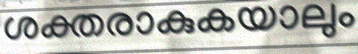
ശക്തരാകുകയാലും